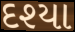
દશ્યા